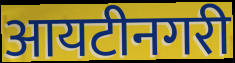
आयटीनगरी